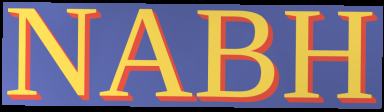
NABH